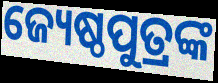
ଜ୍ୟେଷ୍ଠପୁତ୍ରଙ୍କ